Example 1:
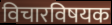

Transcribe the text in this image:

विचारविषयक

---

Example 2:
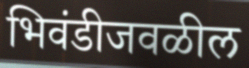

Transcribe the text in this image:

भिवंडीजवळील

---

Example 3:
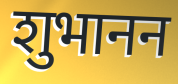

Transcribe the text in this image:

शुभानन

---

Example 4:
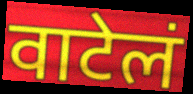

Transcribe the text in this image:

वाटेलं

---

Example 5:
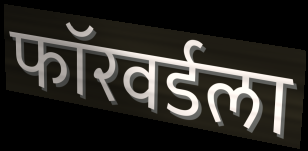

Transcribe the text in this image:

फॉरवर्डला